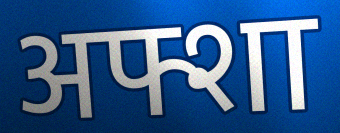
अफ्शा